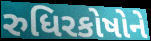
રુધિરકોષોને